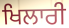
ਖਿਲਾਰੀ